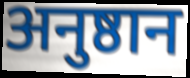
अनुष्ठान